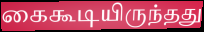
கைகூடியிருந்தது